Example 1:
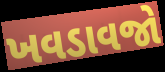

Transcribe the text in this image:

ખવડાવજો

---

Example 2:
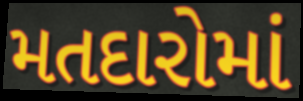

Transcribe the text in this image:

મતદારોમાં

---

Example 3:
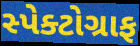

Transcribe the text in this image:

સ્પેક્ટોગ્રાફ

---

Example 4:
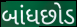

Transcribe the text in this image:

બાંધછોડ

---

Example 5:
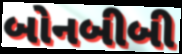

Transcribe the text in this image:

બોનબીબી